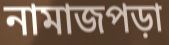
নামাজপড়া